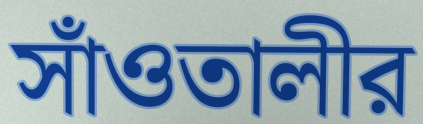
সাঁওতালীর